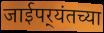
जाईपर्यंतच्या